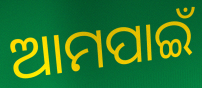
ଆମପାଇଁ